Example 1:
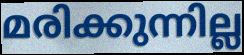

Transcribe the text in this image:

മരിക്കുന്നില്ല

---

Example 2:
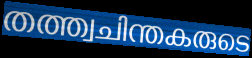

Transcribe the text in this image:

തത്ത്വചിന്തകരുടെ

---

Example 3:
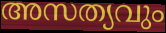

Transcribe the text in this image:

അസത്യവും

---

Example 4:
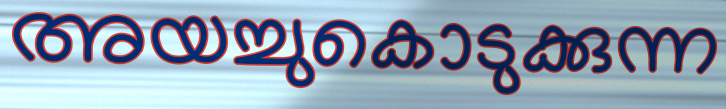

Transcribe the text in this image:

അയച്ചുകൊടുക്കുന്ന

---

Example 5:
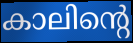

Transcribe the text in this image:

കാലിന്റെ